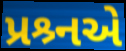
પ્રશ્ર્નએ